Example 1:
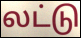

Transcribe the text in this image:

லட்டு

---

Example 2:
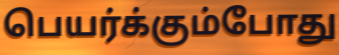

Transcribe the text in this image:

பெயர்க்கும்போது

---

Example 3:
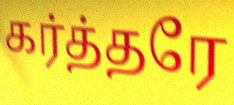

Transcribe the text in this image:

கர்த்தரே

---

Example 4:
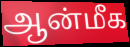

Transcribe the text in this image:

ஆன்மீக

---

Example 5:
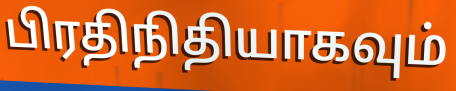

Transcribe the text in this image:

பிரதிநிதியாகவும்